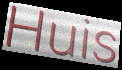
Huis